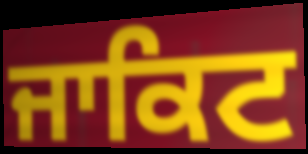
ਜਾਕਿਟ